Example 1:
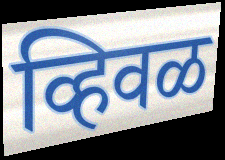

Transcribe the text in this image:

व्हिवळ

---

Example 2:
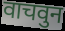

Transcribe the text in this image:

वाचवुन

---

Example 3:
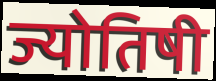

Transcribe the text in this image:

ज्योतिषी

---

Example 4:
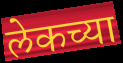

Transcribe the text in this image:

लेकच्या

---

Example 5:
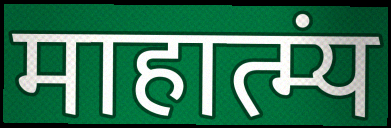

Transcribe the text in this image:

माहात्म्यं